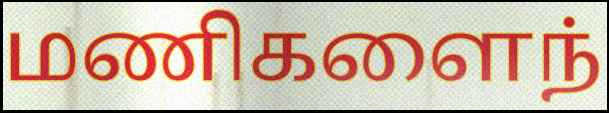
மணிகளைந்